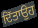
ਦਿੱਤਾਉਹ